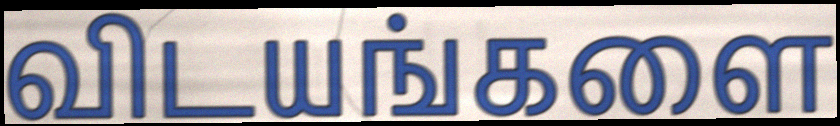
விடயங்களை